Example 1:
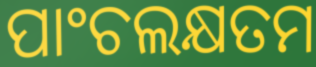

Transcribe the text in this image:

ପାଂଚଲକ୍ଷତମ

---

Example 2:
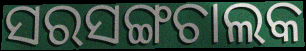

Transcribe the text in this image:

ସରସଙ୍ଗଚାଲକ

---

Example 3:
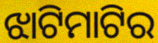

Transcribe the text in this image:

ଝାଟିମାଟିର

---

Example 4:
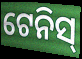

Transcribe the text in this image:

ଟେନିସ୍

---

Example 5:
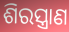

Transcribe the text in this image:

ଶିରସ୍ତ୍ରାଣ